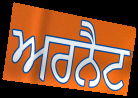
ਅਰਨੈਟ